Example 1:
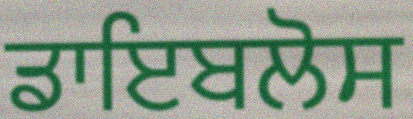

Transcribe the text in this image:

ਡਾਇਬਲੋਸ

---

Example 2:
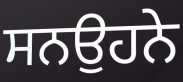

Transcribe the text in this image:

ਸਨਉਹਨੇ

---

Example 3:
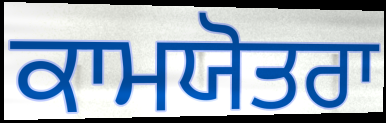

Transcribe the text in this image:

ਕਾਮਯੋਤਰਾ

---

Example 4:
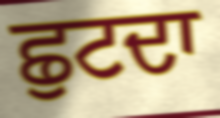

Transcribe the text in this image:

ਛੁਟਦਾ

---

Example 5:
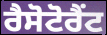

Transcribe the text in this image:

ਰੈਸੋਟੋਰੈਂਟ